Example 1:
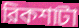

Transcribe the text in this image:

রিকশাটা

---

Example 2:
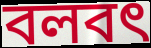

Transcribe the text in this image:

বলবৎ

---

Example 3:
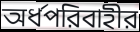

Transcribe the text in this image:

অর্ধপরিবাহীর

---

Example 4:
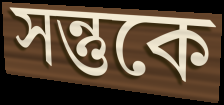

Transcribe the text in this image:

সন্তুকে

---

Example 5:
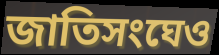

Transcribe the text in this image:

জাতিসংঘেও